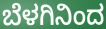
ಬೆಳಗಿನಿಂದ